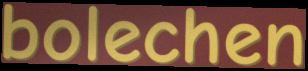
bolechen